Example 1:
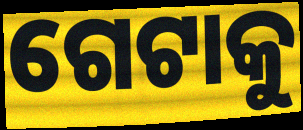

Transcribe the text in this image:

ଗେଟାକୁ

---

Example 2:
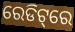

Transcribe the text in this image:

ରେଡିଟ୍‌ରେ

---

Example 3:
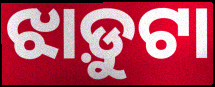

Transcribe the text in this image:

ଝାଡ଼ୁଟା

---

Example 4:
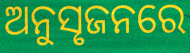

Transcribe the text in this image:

ଅନୁସୃଜନରେ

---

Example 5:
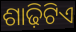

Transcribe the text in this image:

ଶାଢ଼ିଟିଏ